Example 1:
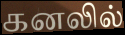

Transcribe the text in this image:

கனலில்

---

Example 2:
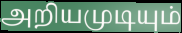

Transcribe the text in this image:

அறியமுடியும்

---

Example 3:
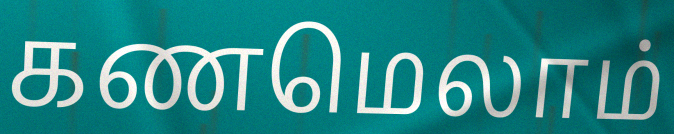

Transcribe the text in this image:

கணமெலாம்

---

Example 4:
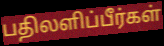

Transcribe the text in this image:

பதிலளிப்பீர்கள்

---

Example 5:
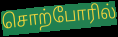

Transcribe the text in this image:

சொற்போரில்